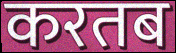
करतब